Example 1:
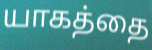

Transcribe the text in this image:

யாகத்தை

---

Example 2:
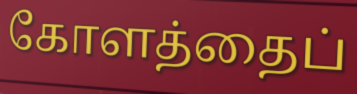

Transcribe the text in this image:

கோளத்தைப்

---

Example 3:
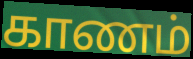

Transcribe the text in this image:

காணம்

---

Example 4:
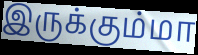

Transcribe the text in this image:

இருக்கும்மா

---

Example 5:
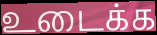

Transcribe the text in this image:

உடைக்க